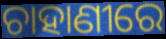
ଚାହାଣୀରେ